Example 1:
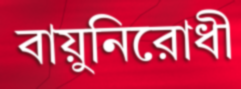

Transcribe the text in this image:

বায়ুনিরোধী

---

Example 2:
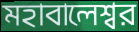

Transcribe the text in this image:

মহাবালেশ্বর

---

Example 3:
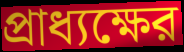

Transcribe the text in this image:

প্রাধ্যক্ষের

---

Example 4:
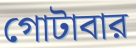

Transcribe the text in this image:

গোটাবার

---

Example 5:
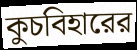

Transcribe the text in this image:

কুচবিহারের